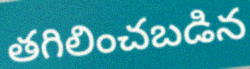
తగిలించబడిన